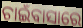
ଚାଇଁବାସାରେ